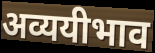
अव्ययीभाव